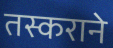
तस्कराने